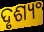
ଦୃଶ୍ୟଂ